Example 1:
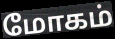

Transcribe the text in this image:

மோகம்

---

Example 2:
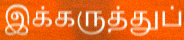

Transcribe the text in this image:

இக்கருத்துப்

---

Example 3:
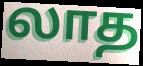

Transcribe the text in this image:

லாத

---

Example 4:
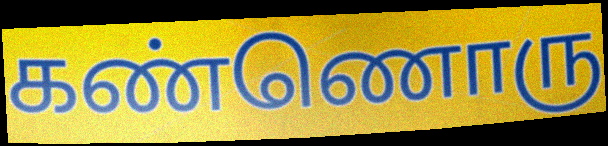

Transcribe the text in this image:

கண்ணொரு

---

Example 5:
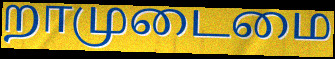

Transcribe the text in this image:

றாமுடைமை